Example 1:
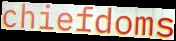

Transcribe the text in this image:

chiefdoms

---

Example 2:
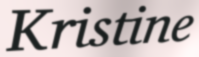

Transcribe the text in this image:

Kristine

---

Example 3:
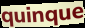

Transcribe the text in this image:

quinque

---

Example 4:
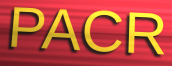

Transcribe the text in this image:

PACR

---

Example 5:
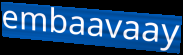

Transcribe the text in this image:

embaavaay